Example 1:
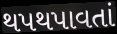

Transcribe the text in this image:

થપથપાવતાં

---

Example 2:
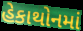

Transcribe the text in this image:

હેકાથોનમાં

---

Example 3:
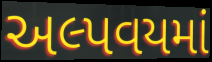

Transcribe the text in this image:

અલ્પવયમાં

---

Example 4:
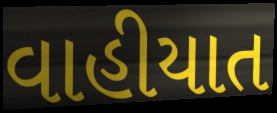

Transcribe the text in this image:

વાહીયાત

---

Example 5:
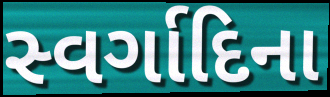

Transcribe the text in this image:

સ્વર્ગાદિના